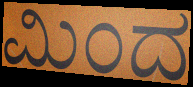
ಮಿಂದ